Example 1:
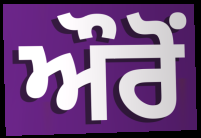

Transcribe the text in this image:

ਔਰੋਂ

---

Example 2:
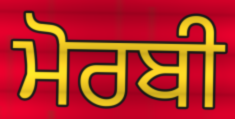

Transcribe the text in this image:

ਮੋਰਬੀ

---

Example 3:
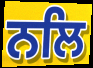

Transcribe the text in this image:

ਨਲਿ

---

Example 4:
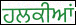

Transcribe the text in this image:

ਹਲਕੀਆਂ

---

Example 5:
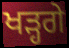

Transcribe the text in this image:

ਖੜ੍ਹਗੇ